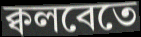
ক্বলবেতে